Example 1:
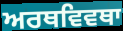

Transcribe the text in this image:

ਅਰਥਵਿਵਥਾ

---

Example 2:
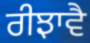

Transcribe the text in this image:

ਰੀਝਾਵੈ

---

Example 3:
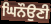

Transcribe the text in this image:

ਘਿਨੌਉਣੀ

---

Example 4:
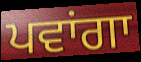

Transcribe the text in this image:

ਪਵਾਂਗਾ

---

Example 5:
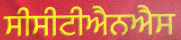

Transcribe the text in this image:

ਸੀਸੀਟੀਐਨਐਸ